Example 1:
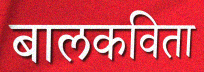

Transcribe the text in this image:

बालकविता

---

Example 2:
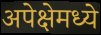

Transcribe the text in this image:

अपेक्षेमध्ये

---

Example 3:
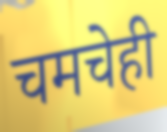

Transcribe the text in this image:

चमचेही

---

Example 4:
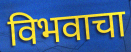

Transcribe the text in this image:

विभवाचा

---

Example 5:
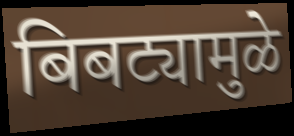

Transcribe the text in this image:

बिबट्यामुळे